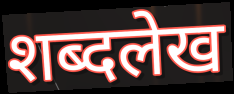
शब्दलेख